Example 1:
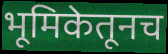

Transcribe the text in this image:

भूमिकेतूनच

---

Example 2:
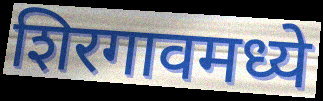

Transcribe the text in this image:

शिरगावमध्ये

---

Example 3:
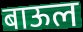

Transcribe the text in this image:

बाऊल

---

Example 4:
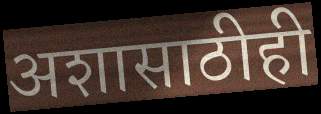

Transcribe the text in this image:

अशासाठीही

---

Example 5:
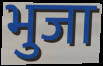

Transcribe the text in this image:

भुजा